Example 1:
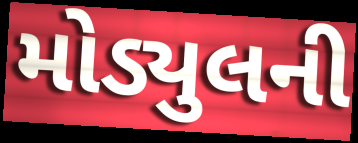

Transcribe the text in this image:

મોડ્યુલની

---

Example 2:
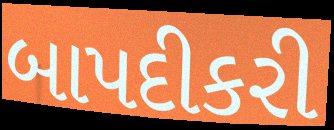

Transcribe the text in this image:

બાપદીકરી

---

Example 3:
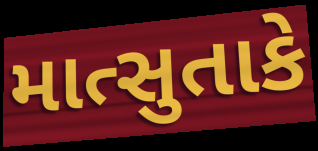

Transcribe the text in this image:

માત્સુતાકે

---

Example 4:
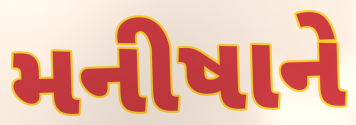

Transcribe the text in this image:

મનીષાને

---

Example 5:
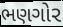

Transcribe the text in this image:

ભણગોર